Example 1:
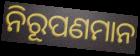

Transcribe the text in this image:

ନିରୂପଣମାନ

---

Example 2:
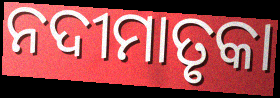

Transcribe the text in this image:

ନଦୀମାତୃକା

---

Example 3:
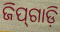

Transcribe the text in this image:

ଜିପ୍‌ଗାଡ଼ି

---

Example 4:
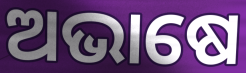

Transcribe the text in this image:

ଅଭାଷେ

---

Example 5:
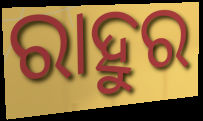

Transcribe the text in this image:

ରାହୁର